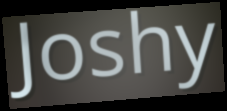
Joshy